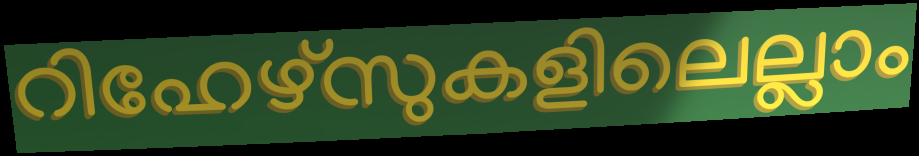
റിഹേഴ്സുകളിലെല്ലാം